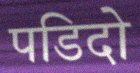
पडिदो